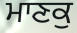
ਮਾਣਕੁ